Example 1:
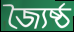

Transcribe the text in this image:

জ্যৈষ্ঠ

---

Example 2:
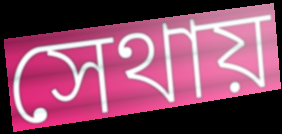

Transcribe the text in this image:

সেথায়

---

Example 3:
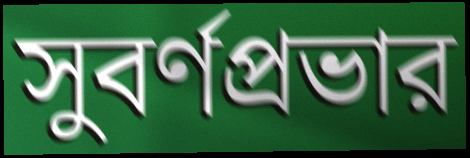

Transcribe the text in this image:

সুবর্ণপ্রভার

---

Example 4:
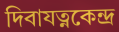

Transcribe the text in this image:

দিবাযত্নকেন্দ্র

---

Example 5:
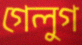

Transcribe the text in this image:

গেলুগ